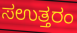
ಸಉತ್ತರಂ